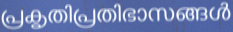
പ്രകൃതിപ്രതിഭാസങ്ങൾ